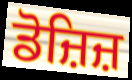
ਡੋਜ਼ਿਜ਼